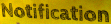
Notification